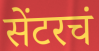
सेंटरचं